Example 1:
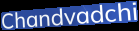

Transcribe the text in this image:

Chandvadchi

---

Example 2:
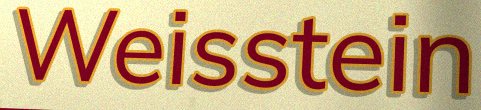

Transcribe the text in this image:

Weisstein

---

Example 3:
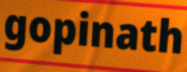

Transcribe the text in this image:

gopinath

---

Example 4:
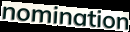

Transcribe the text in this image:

nomination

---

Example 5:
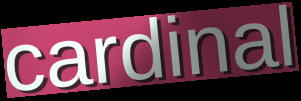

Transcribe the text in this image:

cardinal